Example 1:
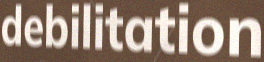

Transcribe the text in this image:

debilitation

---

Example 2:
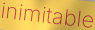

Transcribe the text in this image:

inimitable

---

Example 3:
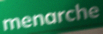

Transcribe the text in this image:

menarche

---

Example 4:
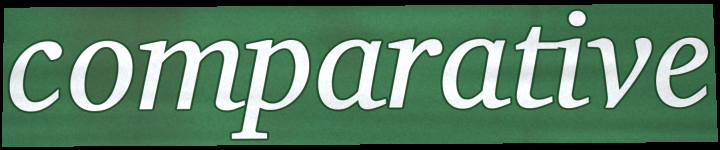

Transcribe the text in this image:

comparative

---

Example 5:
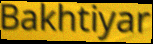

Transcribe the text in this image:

Bakhtiyar